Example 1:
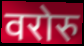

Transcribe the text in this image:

वरोरु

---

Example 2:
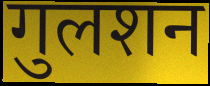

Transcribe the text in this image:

गुलशन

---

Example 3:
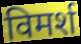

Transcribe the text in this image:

विमर्श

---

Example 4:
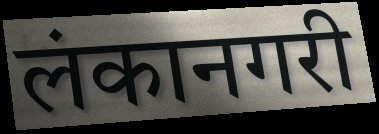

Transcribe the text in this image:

लंकानगरी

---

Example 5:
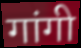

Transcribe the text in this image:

गांगी